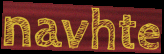
navhte